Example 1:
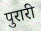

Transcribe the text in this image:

पुरारी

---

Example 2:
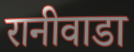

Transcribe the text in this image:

रानीवाडा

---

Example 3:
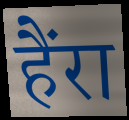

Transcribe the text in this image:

हैंरा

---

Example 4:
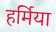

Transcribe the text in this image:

हर्मिया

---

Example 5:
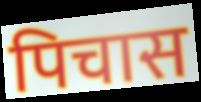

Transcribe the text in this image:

पिचास